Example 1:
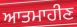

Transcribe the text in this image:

ਆਤਮਾਹੀਣ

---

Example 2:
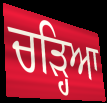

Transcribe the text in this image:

ਚਡ਼੍ਹਿਆ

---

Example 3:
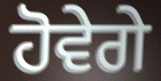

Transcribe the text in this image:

ਹੋਵੇਗੇ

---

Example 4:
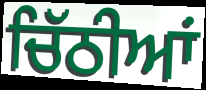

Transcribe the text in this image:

ਚਿੱਠੀਆਂ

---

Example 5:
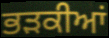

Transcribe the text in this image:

ਭੜਕੀਆਂ